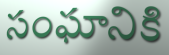
సంఘానికి